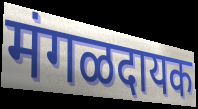
मंगळदायक